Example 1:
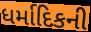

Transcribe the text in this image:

ધર્માદિકની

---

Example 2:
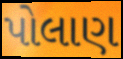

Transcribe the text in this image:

પોલાણ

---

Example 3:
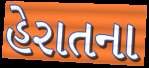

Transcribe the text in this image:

હેરાતના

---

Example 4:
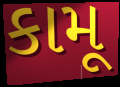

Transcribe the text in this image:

કામૂ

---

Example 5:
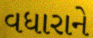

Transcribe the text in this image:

વધારાને